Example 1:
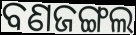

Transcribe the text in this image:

ବଣଜଙ୍ଗଲ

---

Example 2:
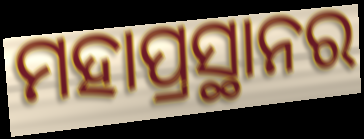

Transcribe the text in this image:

ମହାପ୍ରସ୍ଥାନର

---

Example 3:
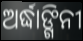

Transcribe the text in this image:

ଅର୍ଦ୍ଧାଙ୍ଗିନୀ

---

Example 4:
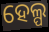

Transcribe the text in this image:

ହେଲ୍ପ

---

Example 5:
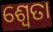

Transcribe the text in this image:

ଶ୍ୱେତା